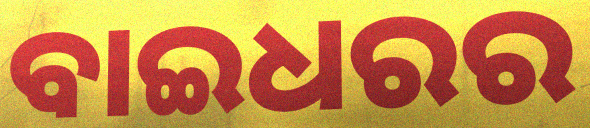
ବାଇଧରର